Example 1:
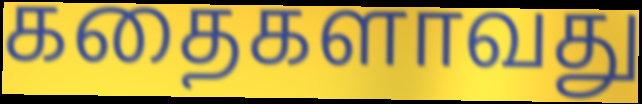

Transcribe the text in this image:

கதைகளாவது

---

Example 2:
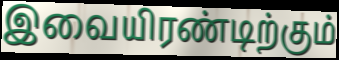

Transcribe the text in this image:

இவையிரண்டிற்கும்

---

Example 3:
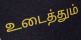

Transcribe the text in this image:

உடைத்தும்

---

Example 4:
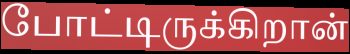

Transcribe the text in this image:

போட்டிருக்கிறான்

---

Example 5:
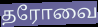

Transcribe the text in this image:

தரோவை